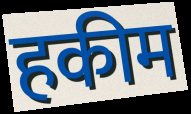
हकीम